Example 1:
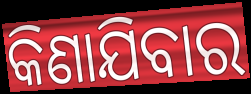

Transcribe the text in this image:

କିଣାଯିବାର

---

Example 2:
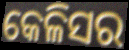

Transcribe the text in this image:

କେଳିସର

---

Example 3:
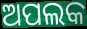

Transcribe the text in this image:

ଅପଲକ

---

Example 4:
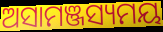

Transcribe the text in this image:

ଅସାମଞ୍ଜସ୍ୟମୟ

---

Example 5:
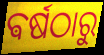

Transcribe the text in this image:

ଵର୍ଷଠାରୁ